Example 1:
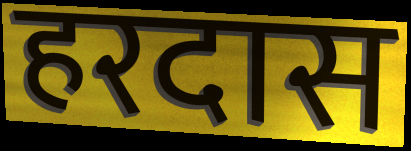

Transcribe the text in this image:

हरदास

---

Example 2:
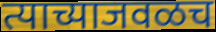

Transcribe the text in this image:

त्याच्याजवळच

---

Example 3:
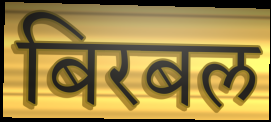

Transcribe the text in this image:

बिरबल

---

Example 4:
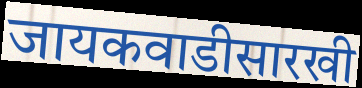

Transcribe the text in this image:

जायकवाडीसारखी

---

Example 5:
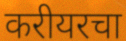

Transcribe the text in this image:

करीयरचा